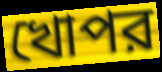
খোপর